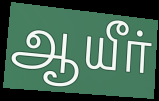
ஆயீர்